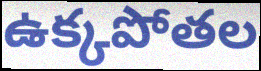
ఉక్కపోతల